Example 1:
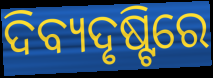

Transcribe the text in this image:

ଦିବ୍ୟଦୃଷ୍ଟିରେ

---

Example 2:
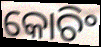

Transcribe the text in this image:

କୋଚିଂ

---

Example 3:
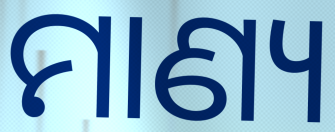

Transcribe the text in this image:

ମାଣ୍ୟ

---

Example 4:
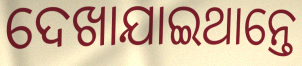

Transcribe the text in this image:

ଦେଖାଯାଇଥାନ୍ତେ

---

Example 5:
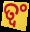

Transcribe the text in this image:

ତ୍ୱଂ